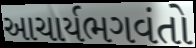
આચાર્યભગવંતો